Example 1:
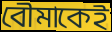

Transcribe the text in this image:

বৌমাকেই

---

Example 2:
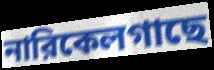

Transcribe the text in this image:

নারিকেলগাছে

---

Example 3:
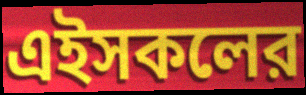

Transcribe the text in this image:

এইসকলের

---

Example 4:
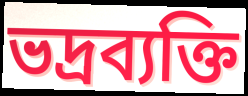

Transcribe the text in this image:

ভদ্রব্যক্তি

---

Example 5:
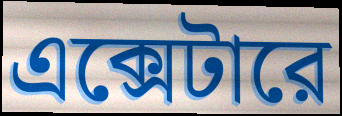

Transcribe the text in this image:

এক্সেটারে